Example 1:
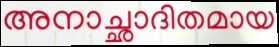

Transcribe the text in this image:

അനാച്ഛാദിതമായ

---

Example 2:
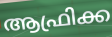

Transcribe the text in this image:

ആഫ്രിക്ക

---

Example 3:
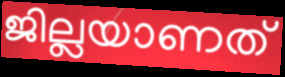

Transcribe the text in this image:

ജില്ലയാണത്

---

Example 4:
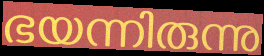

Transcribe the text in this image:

ഭയന്നിരുന്നു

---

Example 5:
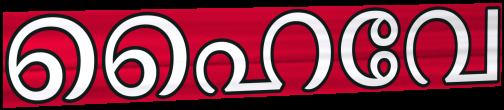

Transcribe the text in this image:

ഹൈവേ